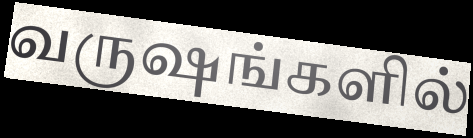
வருஷங்களில்